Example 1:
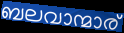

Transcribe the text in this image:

ബലവാന്മാര്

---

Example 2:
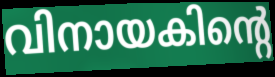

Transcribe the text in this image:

വിനായകിന്റെ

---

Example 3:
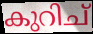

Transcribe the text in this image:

കുറിച്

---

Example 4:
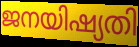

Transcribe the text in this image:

ജനയിഷ്യതി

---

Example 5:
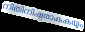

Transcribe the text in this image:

നീതിനിഷ്ഠരാകുകയും